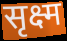
सृक्ष्म